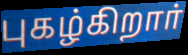
புகழ்கிறார்